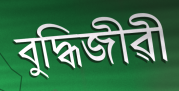
বুদ্ধিজীৱী